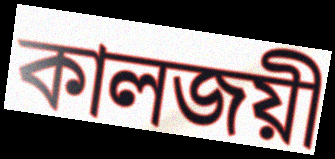
কালজয়ী